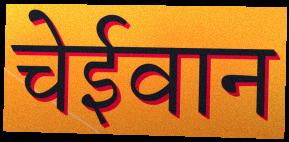
चेईवान